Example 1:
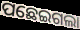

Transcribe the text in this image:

ପଛେଇଗଲା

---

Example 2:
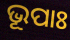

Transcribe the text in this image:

ଭୂପାଃ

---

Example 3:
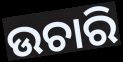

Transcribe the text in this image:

ଉଚାରି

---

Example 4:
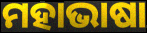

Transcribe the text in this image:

ମହାଭାଷା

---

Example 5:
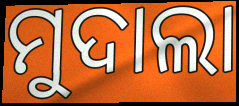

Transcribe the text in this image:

ମୁଦାଲା